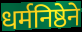
धर्मनिष्ठेने